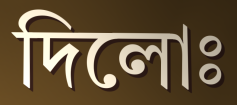
দিলোঃ